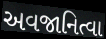
અવજાનિત્વા